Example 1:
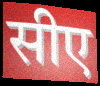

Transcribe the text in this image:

सीए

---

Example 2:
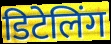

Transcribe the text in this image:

डिटेलिंग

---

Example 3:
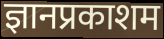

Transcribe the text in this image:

ज्ञानप्रकाशम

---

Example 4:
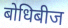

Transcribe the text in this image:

बोधिबीज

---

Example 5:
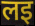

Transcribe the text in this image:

लइ